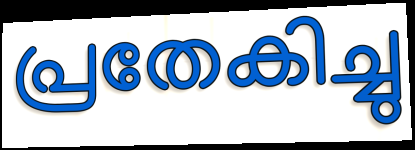
പ്രതേകിച്ചു